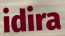
idira